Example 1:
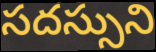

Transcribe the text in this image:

సదస్సుని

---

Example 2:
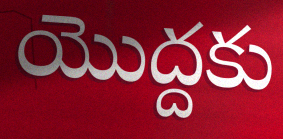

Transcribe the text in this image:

యొద్దకు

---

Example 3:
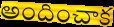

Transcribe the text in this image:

అందించాక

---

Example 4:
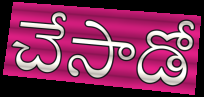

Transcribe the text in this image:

చేసాడో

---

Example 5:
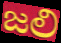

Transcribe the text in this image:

జలి